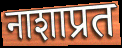
नाशाप्रत